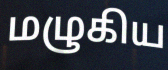
மழுகிய